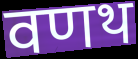
वणथ